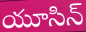
యూసిన్